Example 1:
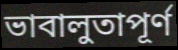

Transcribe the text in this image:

ভাবালুতাপূর্ণ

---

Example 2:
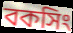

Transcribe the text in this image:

বকসিং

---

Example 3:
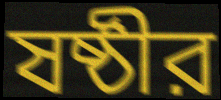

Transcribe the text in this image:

ষষ্ঠীর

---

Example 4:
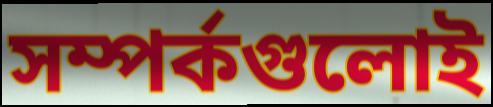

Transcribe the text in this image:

সম্পর্কগুলোই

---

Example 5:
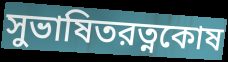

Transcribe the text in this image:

সুভাষিতরত্নকোষ